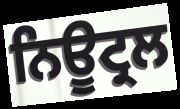
ਨਿਊਟ੍ਰਲ